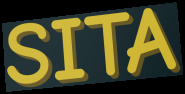
SITA